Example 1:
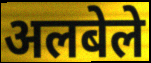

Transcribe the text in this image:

अलबेले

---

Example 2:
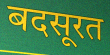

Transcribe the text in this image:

बदसूरत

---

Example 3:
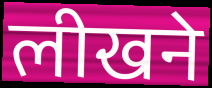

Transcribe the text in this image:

लीखने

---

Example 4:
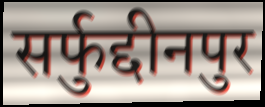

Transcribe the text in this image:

सर्फुद्दीनपुर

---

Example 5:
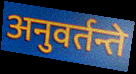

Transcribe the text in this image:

अनुवर्तन्ते